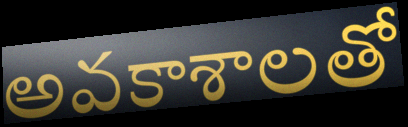
అవకాశాలతో